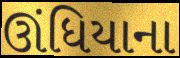
ઊંધિયાના